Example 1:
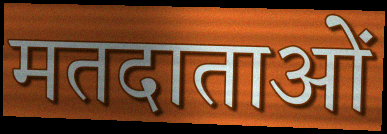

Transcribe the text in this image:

मतदाताओें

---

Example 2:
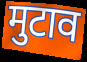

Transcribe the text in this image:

मुटाव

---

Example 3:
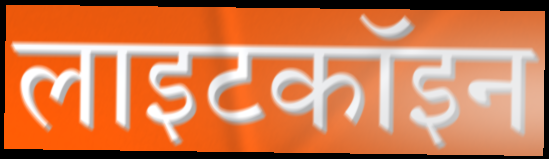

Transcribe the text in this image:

लाइटकॉइन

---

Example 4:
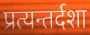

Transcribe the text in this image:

प्रत्यन्तर्दशा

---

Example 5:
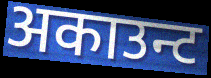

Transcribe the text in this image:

अकाउन्ट